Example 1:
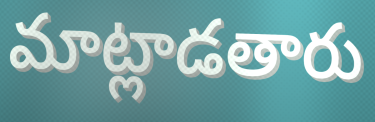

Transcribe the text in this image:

మాట్లాడతారు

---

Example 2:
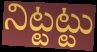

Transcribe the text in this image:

నిట్టట్టు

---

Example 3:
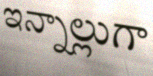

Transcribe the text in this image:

ఇన్నాల్లుగా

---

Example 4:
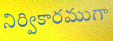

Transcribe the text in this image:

నిర్వికారముగా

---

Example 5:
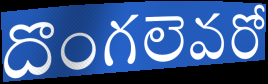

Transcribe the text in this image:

దొంగలెవరో